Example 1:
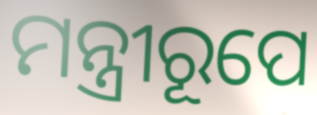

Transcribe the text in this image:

ମନ୍ତ୍ରୀରୂପେ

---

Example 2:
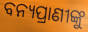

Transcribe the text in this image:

ବନ୍ୟପ୍ରାଣୀଙ୍କୁ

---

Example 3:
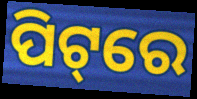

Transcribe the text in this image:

ପିଟ୍‌ରେ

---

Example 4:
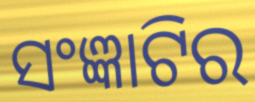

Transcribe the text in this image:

ସଂଜ୍ଞାଟିର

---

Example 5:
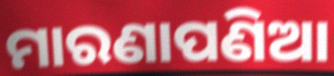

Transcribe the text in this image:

ମାରଣାପଣିଆ